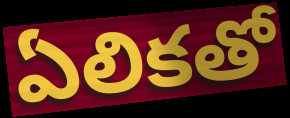
ఏలికతో